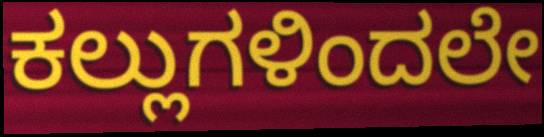
ಕಲ್ಲುಗಳಿಂದಲೇ